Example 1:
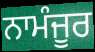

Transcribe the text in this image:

ਨਾਮੰਜੂਰ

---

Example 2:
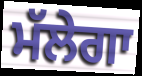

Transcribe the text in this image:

ਮੱਲੇਗਾ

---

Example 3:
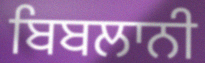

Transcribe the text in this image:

ਬਿਬਲਾਨੀ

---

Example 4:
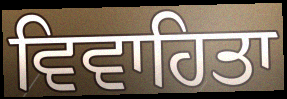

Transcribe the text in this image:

ਵਿਵਾਹਿਤਾ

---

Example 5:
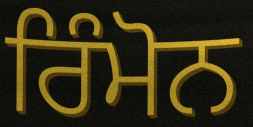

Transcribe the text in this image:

ਰਿੰਮੋਨ